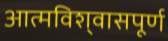
आत्मविश्वासपूर्ण